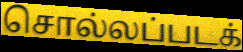
சொல்லப்படக்